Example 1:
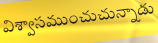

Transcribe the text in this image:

విశ్వాసముంచుచున్నాడు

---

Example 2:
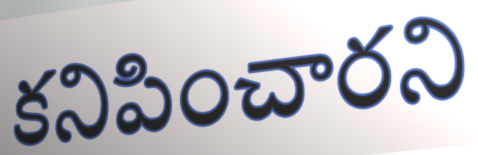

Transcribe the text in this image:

కనిపించారని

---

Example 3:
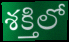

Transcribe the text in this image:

శక్తిలో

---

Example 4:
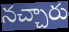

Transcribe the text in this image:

నచ్చారు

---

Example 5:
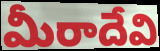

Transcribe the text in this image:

మీరాదేవి